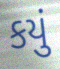
કયું